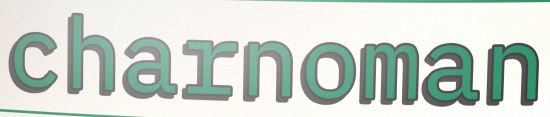
charnoman